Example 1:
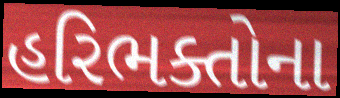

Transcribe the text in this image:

હરિભક્તોના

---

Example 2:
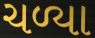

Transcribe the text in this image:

ચળ્યા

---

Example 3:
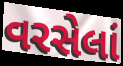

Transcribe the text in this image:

વરસેલાં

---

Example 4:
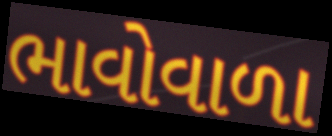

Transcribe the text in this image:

ભાવોવાળા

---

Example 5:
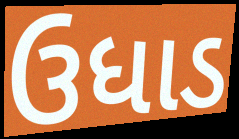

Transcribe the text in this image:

ઉધાડ